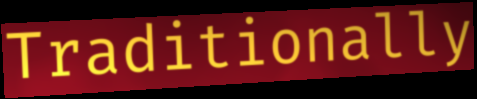
Traditionally